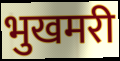
भुखमरी